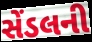
સેંડલની